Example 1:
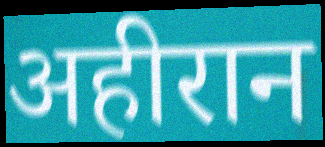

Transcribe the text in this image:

अहीरान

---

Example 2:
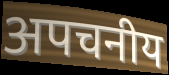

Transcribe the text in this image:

अपचनीय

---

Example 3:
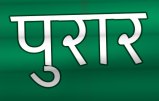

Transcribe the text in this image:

पुरार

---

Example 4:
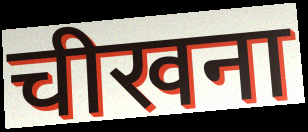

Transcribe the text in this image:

चीखना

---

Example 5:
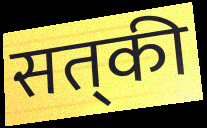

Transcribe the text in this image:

सत्‌की